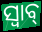
ସ୍ବାବ୍